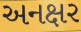
અનક્ષર